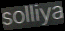
solliya